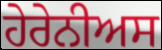
ਹੇਰੇਨੀਅਸ